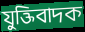
যুক্তিবাদক